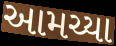
આમચ્યા